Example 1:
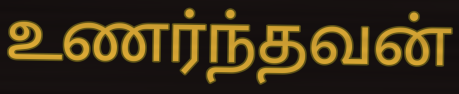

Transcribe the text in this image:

உணர்ந்தவன்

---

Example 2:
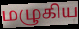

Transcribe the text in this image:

மழுகிய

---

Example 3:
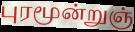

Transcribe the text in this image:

புரமூன்றுஞ்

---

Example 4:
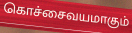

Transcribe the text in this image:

கொச்சைவயமாகும்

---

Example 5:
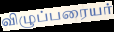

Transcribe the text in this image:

விழுப்பரையர்